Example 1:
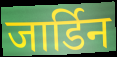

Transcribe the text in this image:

जार्डिन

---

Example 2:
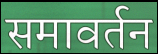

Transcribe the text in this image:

समावर्तन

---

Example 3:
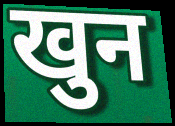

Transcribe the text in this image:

खुन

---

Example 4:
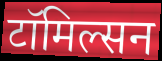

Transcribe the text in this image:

टॉमिल्सन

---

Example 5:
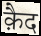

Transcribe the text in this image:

क़ैद